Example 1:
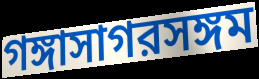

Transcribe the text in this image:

গঙ্গাসাগরসঙ্গম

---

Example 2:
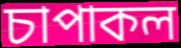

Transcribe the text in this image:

চাপাকল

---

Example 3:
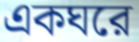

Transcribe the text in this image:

একঘরে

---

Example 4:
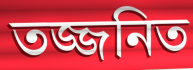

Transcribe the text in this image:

তজ্জনিত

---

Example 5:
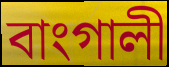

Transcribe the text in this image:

বাংগালী